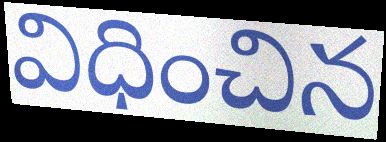
విధించిన